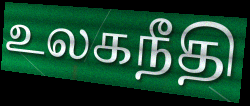
உலகநீதி